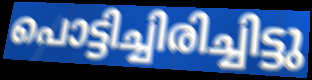
പൊട്ടിച്ചിരിച്ചിട്ടു